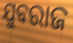
ଯୁବରାଜ